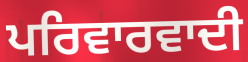
ਪਰਿਵਾਰਵਾਦੀ